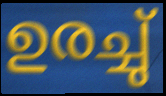
ഉരച്ചു്